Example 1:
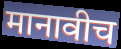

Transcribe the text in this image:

मानावीच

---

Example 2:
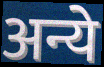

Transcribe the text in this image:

अन्ये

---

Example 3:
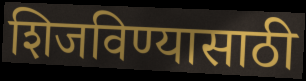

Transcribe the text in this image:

शिजविण्यासाठी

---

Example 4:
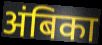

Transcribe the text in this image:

अंबिका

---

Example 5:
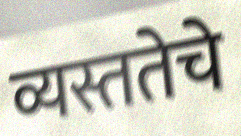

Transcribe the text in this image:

व्यस्ततेचे